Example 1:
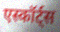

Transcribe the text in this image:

एस्कॉर्ट्स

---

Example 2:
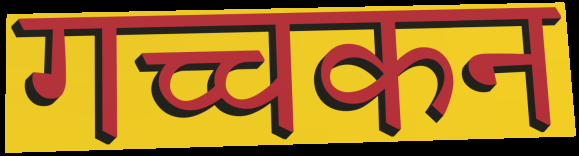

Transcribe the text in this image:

गच्चकन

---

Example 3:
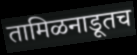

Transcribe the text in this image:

तामिळनाडूतच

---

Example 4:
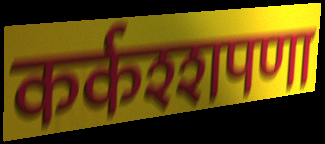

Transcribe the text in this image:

कर्कश्शपणा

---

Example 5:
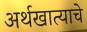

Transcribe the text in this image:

अर्थखात्याचे